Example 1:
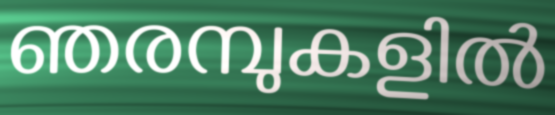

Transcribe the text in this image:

ഞരമ്പുകളിൽ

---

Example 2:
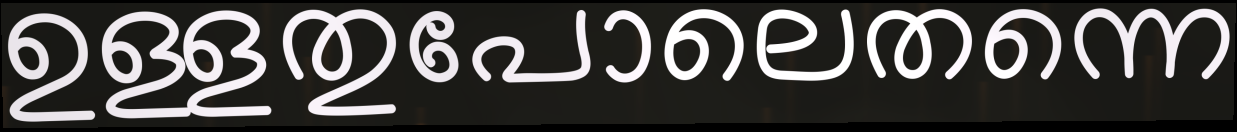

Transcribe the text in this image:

ഉള്ളതുപോലെതന്നെ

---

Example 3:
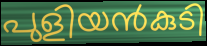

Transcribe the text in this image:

പുളിയൻകുടി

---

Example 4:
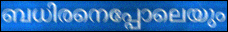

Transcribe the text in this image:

ബധിരനെപ്പോലെയും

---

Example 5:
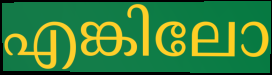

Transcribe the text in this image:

എങ്കിലോ